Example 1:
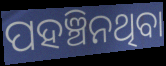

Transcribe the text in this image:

ପହଞ୍ଚିନଥିବା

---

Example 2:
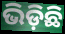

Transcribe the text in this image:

ଭିଡ଼ିଛି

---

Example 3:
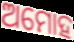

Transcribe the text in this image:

ଅମୋହ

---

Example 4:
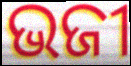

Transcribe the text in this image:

ଭଜୀ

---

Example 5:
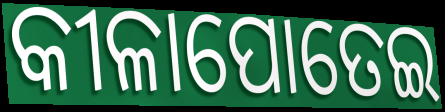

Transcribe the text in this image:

କୀଳାପୋତେଇ